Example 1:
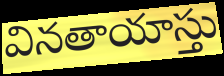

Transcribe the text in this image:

వినతాయాస్తు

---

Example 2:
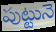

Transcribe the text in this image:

పుట్టునె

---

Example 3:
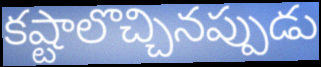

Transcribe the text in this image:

కష్టాలొచ్చినప్పుడు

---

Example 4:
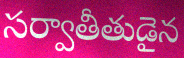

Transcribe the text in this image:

సర్వాతీతుడైన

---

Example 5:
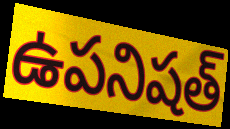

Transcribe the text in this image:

ఉపనిషత్